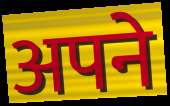
अपने